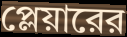
প্লেয়ারের